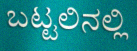
ಬಟ್ಟಲಿನಲ್ಲಿ